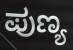
ಪುಣ್ಯ